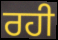
ਰਹੀ